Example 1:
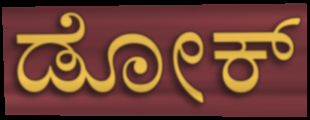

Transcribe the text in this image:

ಡೋಕ್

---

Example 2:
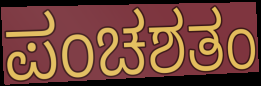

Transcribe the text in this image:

ಪಂಚಶತಂ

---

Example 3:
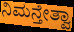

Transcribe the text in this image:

ನಿಮನ್ತೇತ್ವಾ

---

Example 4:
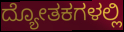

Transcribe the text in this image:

ದ್ಯೋತಕಗಳಲ್ಲಿ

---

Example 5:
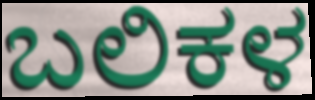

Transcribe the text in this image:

ಬಲಿಕಳ